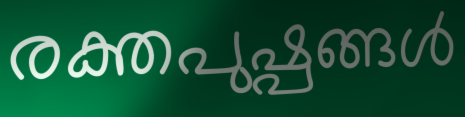
രക്തപുഷ്പങ്ങൾ